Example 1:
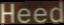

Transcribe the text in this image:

Heed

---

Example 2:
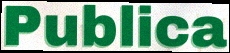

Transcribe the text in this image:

Publica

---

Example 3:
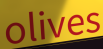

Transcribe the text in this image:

olives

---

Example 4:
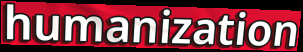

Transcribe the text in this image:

humanization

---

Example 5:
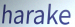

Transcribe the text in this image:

harake